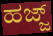
ಹಜ್ಜ್